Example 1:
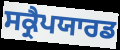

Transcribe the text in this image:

ਸਕ੍ਰੈਪਯਾਰਡ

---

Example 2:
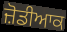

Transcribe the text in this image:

ਜ਼ੋਡੀਆਕ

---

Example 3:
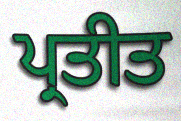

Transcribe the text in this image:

ਪ੍ਰਤੀਤ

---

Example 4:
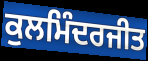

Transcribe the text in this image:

ਕੁਲਮਿੰਦਰਜੀਤ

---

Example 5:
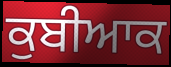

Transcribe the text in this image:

ਕੁਬੀਆਕ